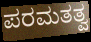
ಪರಮತತ್ವ